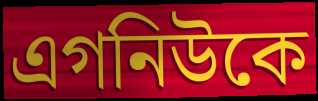
এগনিউকে